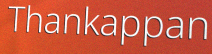
Thankappan